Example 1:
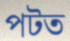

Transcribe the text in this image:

পটত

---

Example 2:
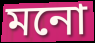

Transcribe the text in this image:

মনো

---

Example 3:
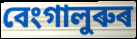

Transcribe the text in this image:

বেংগালুৰুৰ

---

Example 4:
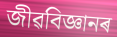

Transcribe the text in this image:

জীৱবিজ্ঞানৰ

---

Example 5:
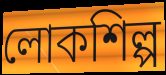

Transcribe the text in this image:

লোকশিল্প